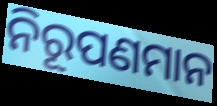
ନିରୂପଣମାନ